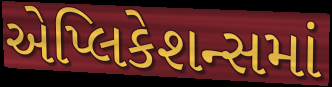
એપ્લિકેશન્સમાં